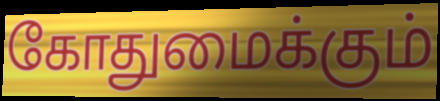
கோதுமைக்கும்